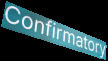
Confirmatory